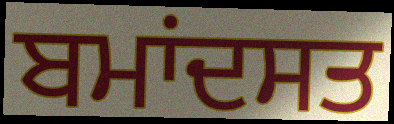
ਬਮਾਂਦਸਤ